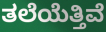
ತಲೆಯೆತ್ತಿವೆ